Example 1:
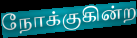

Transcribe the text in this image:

நோக்குகின்ற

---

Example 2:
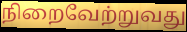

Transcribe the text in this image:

நிறைவேற்றுவது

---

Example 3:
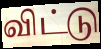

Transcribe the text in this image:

விட்டு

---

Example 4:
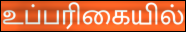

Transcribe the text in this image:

உப்பரிகையில்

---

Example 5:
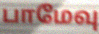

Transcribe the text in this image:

பாமேவு